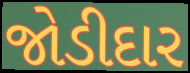
જોડીદાર